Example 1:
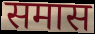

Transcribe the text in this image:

समास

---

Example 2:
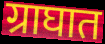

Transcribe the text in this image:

ग्राघात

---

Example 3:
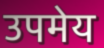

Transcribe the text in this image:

उपमेय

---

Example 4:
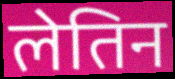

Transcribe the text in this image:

लेतिन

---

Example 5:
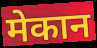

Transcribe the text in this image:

मेकान